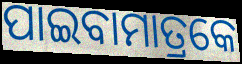
ପାଇବାମାତ୍ରକେ